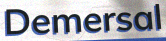
Demersal